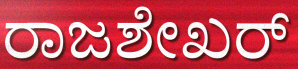
ರಾಜಶೇಖರ್